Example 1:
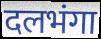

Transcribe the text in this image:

दलभंगा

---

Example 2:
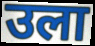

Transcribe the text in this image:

उला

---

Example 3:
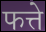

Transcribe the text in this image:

फत्ते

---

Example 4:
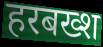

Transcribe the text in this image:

हरबख्श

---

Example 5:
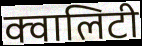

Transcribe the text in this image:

क्‍वालिटी